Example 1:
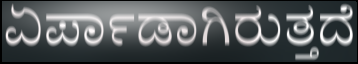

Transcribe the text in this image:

ಏರ್ಪಾಡಾಗಿರುತ್ತದೆ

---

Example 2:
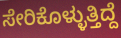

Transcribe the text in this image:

ಸೇರಿಕೊಳ್ಳುತ್ತಿದ್ದೆ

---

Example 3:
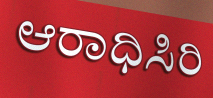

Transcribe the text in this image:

ಆರಾಧಿಸಿರಿ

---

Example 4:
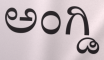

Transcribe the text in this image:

ಅಂಗ್ಡಿ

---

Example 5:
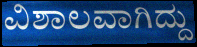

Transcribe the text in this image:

ವಿಶಾಲವಾಗಿದ್ದು